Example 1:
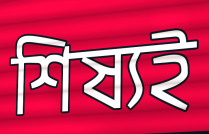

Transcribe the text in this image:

শিষ্যই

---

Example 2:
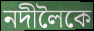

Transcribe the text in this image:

নদীলৈকে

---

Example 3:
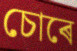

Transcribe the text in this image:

চোৰে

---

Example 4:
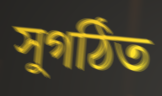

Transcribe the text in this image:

সুগঠিত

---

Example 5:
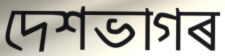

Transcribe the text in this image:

দেশভাগৰ